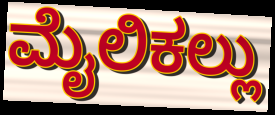
ಮೈಲಿಕಲ್ಲು